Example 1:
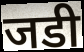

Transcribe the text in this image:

जडी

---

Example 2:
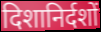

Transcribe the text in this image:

दिशानिर्दशों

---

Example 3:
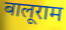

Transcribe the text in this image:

बालूराम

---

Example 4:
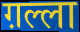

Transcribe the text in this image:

ग़ल्ला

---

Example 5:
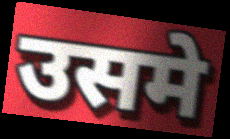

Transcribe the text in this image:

उसमे